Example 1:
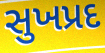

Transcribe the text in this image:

સુખપ્રદ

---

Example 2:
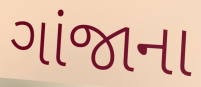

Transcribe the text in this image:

ગાંજાના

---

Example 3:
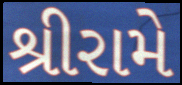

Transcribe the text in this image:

શ્રીરામે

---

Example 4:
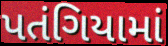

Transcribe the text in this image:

પતંગિયામાં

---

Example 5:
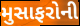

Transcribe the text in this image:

મુસાફરોની